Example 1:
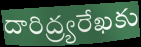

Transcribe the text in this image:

దారిద్ర్యరేఖకు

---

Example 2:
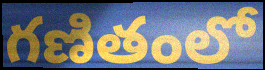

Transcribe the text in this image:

గణితంలో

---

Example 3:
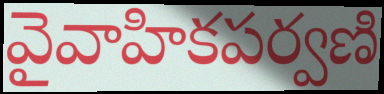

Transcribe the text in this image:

వైవాహికపర్వణి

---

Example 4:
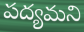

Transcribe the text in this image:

పద్యమని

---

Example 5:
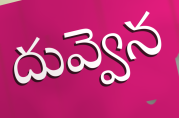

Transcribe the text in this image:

దువ్వెన